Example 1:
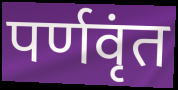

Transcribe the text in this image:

पर्णवृंत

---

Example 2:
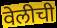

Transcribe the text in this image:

वेलीची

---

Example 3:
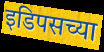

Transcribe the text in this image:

इडिपसच्या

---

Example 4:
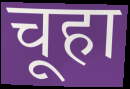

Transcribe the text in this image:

चूहा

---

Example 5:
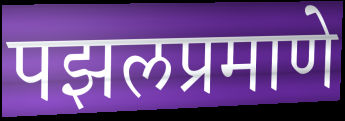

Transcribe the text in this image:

पझलप्रमाणे